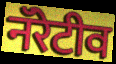
नॅरेटीव